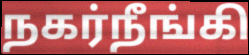
நகர்நீங்கி